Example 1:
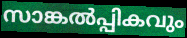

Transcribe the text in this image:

സാങ്കൽപ്പികവും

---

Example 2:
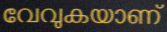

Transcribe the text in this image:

വേവുകയാണ്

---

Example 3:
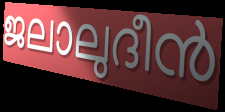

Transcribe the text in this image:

ജലാലുദീൻ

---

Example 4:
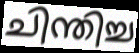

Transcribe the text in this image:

ചിന്തിച്ച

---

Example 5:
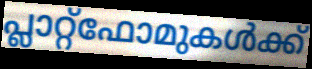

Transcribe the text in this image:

പ്ലാറ്റ്ഫോമുകൾക്ക്